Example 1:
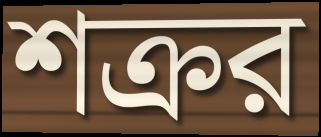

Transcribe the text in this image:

শক্রর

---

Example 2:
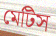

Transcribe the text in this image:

মেটিস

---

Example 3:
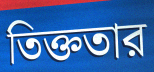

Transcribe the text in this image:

তিক্ততার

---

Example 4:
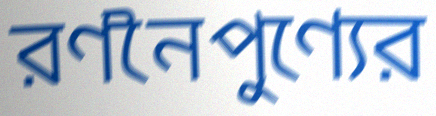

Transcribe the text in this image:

রণনৈপুণ্যের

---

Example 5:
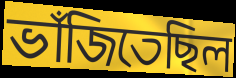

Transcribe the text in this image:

ভাঁজিতেছিল